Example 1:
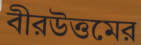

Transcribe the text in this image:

বীরউত্তমের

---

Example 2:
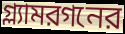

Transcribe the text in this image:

গ্ল্যামরগনের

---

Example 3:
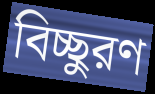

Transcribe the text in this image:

বিচ্ছুরণ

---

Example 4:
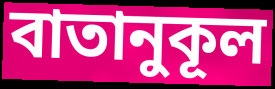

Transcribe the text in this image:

বাতানুকূল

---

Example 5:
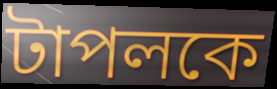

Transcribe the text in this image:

টাপলকে